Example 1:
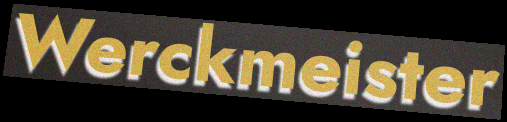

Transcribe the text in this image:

Werckmeister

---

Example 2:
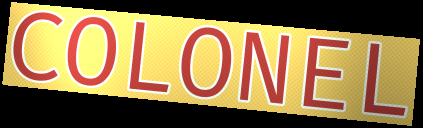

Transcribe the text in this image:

COLONEL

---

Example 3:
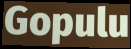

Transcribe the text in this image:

Gopulu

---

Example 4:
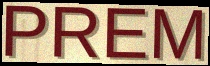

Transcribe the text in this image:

PREM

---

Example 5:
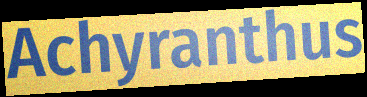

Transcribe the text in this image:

Achyranthus